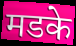
मडके